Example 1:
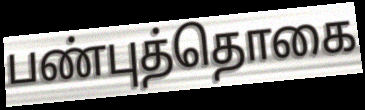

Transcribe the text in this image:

பண்புத்தொகை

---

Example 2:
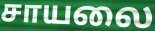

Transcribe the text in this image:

சாயலை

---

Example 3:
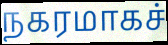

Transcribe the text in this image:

நகரமாகச்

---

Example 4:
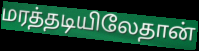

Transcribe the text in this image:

மரத்தடியிலேதான்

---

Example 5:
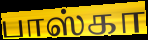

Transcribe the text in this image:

பாஸ்கா